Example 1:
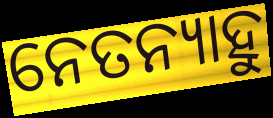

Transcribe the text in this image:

ନେତନ୍ୟାହୁ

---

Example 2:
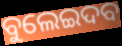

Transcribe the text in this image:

ବୁଲେଇଦବ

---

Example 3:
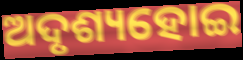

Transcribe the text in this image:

ଅଦୃଶ୍ୟହୋଇ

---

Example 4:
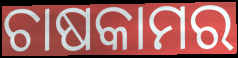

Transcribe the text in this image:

ଚାଷକାମର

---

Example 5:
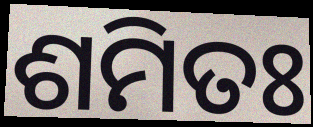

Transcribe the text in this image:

ଶମିତଃ